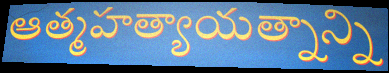
ఆత్మహత్యాయత్నాన్ని